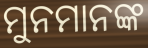
ମୁନମାନଙ୍କ